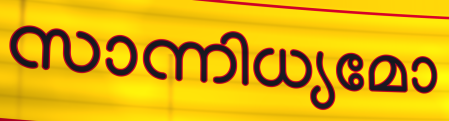
സാന്നിധ്യമോ